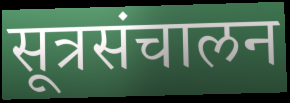
सूत्रसंचालन